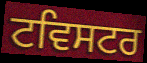
ਟਵਿਸਟਰ